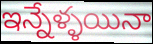
ఇన్నేళ్ళయినా